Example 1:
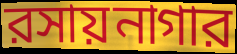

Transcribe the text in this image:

রসায়নাগার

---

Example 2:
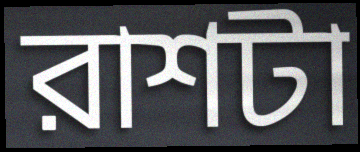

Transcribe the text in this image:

রাশটা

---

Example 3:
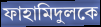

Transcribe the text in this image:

ফাহামিদুলকে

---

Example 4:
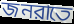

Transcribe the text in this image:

জনরাতে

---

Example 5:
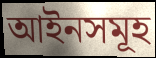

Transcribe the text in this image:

আইনসমূহ